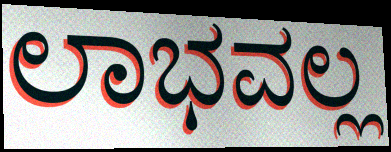
ಲಾಭವಲ್ಲ